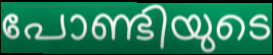
പോണ്ടിയുടെ